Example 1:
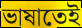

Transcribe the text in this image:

ভাষাতেই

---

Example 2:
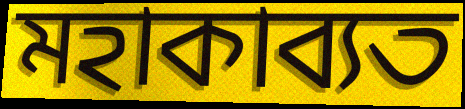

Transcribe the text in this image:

মহাকাব্যত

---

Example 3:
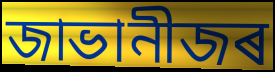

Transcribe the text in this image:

জাভানীজৰ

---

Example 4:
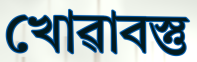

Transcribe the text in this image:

খোৱাবস্তু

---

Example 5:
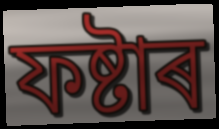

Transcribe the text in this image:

ফষ্টাৰ